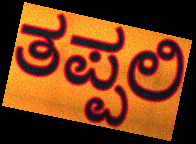
ತಪ್ಪಲಿ